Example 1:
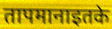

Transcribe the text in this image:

तापमानाइतके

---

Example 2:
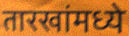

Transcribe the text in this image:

तारखांमध्ये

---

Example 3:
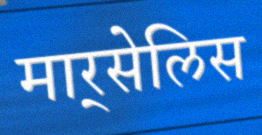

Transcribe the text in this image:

मार्सेलिस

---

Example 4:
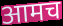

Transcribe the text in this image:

आमच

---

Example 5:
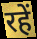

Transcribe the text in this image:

रहें